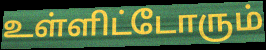
உள்ளிட்டோரும்